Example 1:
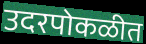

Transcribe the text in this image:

उदरपोकळीत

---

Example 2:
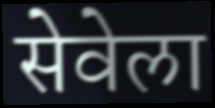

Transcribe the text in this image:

सेवेला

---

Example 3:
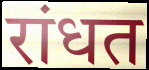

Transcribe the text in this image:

रांधत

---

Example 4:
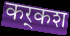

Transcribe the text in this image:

कर्कश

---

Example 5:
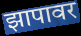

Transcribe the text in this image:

झापावर